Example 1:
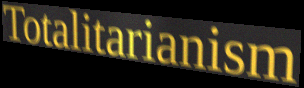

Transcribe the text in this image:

Totalitarianism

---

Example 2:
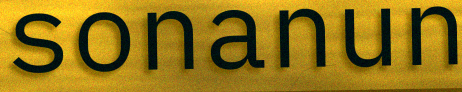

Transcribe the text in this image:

sonanun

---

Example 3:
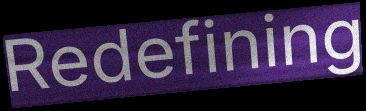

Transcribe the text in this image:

Redefining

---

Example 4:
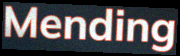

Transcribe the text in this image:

Mending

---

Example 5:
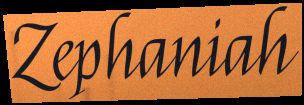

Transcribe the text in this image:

Zephaniah